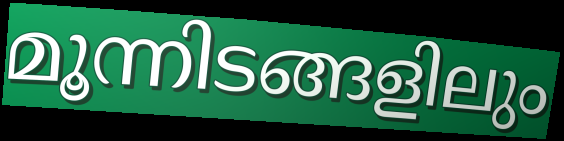
മൂന്നിടങ്ങളിലും